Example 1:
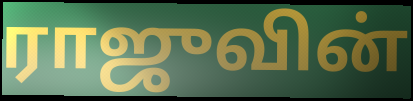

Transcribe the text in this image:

ராஜுவின்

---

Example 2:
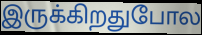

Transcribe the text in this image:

இருக்கிறதுபோல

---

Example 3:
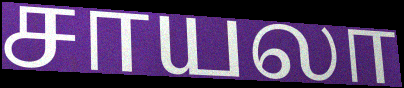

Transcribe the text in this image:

சாயலா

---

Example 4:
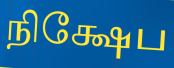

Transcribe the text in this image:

நிக்ஷேப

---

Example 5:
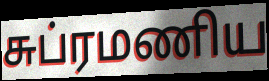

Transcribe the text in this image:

சுப்ரமணிய